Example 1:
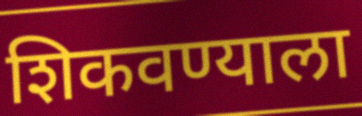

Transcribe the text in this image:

शिकवण्याला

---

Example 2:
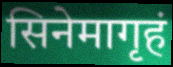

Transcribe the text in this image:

सिनेमागृहं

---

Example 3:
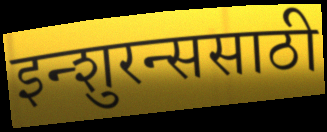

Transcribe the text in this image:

इन्शुरन्ससाठी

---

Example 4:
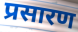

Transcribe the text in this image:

प्रसारण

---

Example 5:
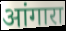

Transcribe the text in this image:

आंगारा